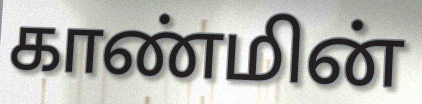
காண்மின்